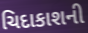
ચિદાકાશની